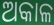
ଅକାଳ